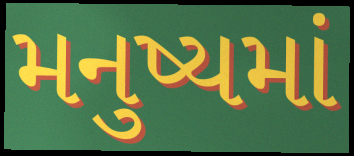
મનુષ્યમાં